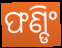
ଫଣ୍ଡିଂ